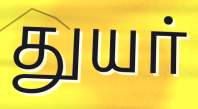
துயர்